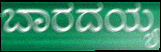
ಬಾರದಯ್ಯ